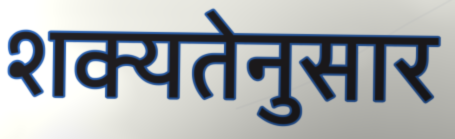
शक्यतेनुसार